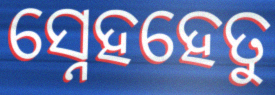
ସ୍ନେହହେତୁ